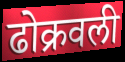
ढोक्रवली